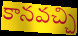
కానవచ్చి